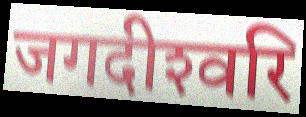
जगदीश्वरि